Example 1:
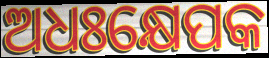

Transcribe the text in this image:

ଅଧଃକ୍ଷେପକ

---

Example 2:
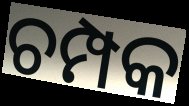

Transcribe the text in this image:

ଚମ୍ପକ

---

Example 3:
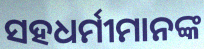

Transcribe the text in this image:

ସହଧର୍ମୀମାନଙ୍କ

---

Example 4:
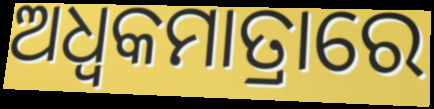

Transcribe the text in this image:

ଅଧ୍ଵକମାତ୍ରାରେ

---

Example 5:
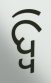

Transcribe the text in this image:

ଦ୍ଵି